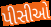
પીસીઓ